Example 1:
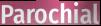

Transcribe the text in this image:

Parochial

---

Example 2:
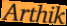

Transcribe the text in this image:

Arthik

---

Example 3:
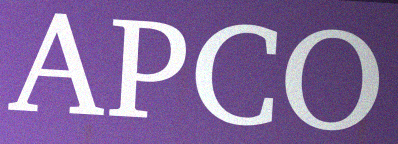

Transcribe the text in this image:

APCO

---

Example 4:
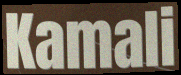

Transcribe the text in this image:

Kamali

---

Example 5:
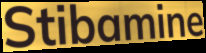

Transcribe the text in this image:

Stibamine